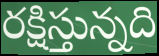
రక్షిస్తున్నది